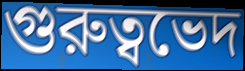
গুরুত্বভেদ